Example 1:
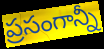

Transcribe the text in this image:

ప్రసంగాన్నీ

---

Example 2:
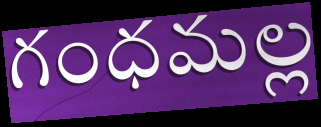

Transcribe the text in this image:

గంధమల్ల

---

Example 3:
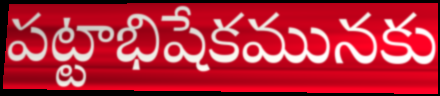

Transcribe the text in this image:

పట్టాభిషేకమునకు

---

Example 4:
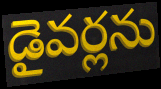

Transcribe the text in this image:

డైవర్లను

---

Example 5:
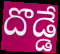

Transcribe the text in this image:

దొడ్డే